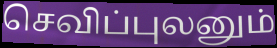
செவிப்புலனும்